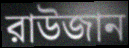
রাউজান